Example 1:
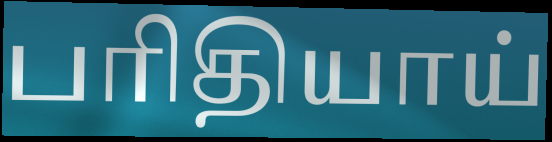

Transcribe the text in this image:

பரிதியாய்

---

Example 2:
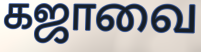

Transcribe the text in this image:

கஜாவை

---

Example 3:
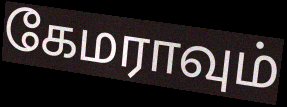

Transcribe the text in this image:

கேமராவும்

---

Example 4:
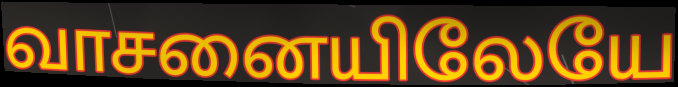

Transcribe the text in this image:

வாசனையிலேயே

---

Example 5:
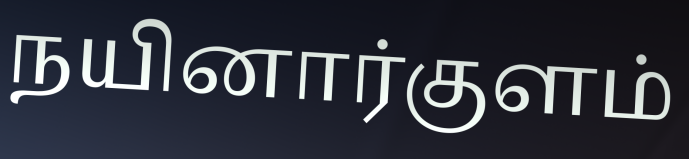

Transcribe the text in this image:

நயினார்குளம்